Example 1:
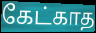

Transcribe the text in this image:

கேட்காத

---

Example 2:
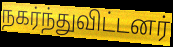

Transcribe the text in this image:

நகர்ந்துவிட்டனர்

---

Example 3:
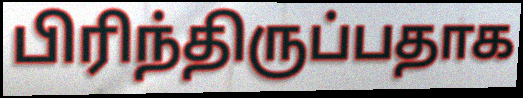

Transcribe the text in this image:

பிரிந்திருப்பதாக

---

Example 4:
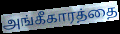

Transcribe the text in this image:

அங்கீகாரத்தை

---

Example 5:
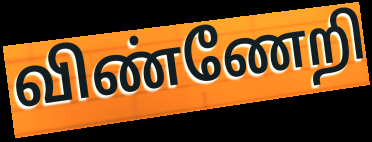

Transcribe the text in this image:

விண்ணேறி